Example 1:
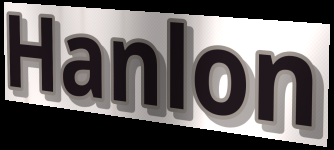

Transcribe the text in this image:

Hanlon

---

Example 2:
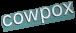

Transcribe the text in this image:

cowpox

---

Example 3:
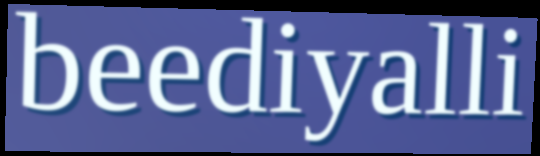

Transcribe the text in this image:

beediyalli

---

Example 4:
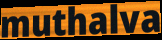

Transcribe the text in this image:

muthalva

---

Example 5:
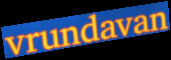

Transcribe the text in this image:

vrundavan